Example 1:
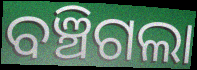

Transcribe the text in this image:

ବଞ୍ଚିଗଲା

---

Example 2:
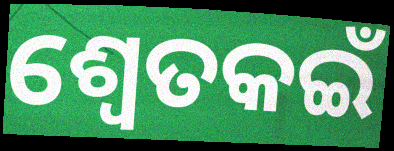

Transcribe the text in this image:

ଶ୍ୱେତକଇଁ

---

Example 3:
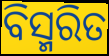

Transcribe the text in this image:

ବିସ୍ମରିତ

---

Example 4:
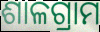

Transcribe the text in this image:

ଶାଳଗ୍ରାମ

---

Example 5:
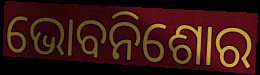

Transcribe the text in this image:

ଭୋବନିଶୋର